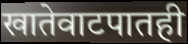
खातेवाटपातही